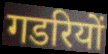
गडरियों